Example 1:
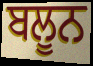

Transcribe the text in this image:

ਬਲੂਨ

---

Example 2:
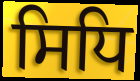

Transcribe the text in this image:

ਸਿਧਿ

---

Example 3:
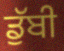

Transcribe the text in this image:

ਡੁੱਬੀ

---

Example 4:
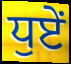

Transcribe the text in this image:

ਧੁਏਂ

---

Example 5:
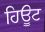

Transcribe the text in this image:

ਹਿਊਟ